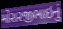
મોરારજીભાઇનું